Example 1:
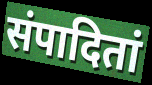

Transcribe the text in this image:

संपादितां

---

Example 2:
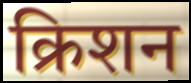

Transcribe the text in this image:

क्रिशन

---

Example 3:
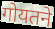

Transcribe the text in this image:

गोयतने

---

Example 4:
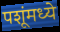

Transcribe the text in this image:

पशूंमध्ये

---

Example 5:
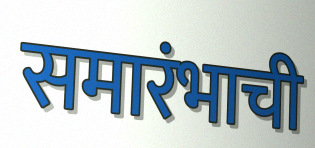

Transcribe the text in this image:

समारंभाची